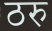
ठरु